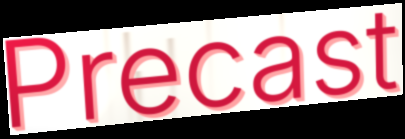
Precast